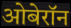
ओबेरॉन